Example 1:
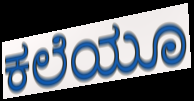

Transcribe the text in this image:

ಕಲೆಯೂ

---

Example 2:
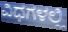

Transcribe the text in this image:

ವಿಧಗಳಲ್ಲಿ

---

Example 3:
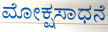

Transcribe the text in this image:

ಮೋಕ್ಷಸಾಧನೆ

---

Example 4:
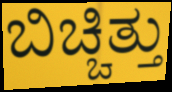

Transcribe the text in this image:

ಬಿಚ್ಚಿತ್ತು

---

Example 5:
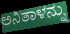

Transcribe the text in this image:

ಅನಿತಾಳನ್ನು